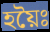
হয়ৈঃ